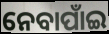
ନେବାପାଁଇ